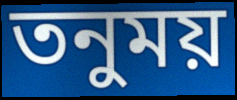
তনুময়